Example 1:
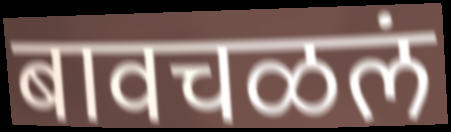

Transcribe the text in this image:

बावचळलं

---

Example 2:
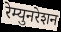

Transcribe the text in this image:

रेम्युनरेशन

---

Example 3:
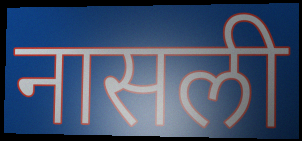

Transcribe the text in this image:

नासली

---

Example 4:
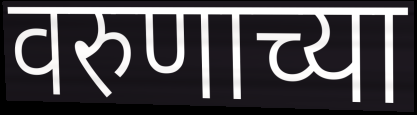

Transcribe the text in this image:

वरुणाच्या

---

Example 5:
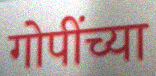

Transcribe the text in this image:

गोपींच्या